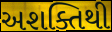
અશક્તિથી